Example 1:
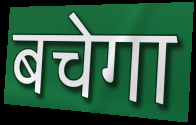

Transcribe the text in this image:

बचेगा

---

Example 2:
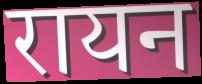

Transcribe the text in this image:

रायन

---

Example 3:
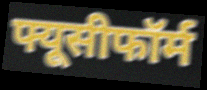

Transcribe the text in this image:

फ्यूसीफॉर्म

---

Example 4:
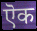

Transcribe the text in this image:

ऎक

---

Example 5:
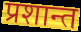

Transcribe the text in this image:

प्रशान्त